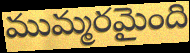
ముమ్మరమైంది